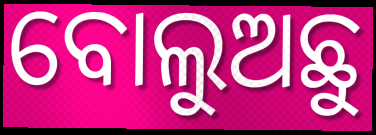
ବୋଲୁଅଛୁ